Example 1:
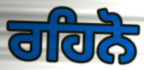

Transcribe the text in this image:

ਰਹਿਨੋ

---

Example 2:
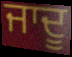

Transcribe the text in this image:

ਜਾਦੂ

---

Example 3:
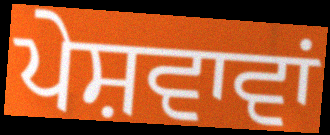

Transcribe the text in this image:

ਪੇਸ਼ਵਾਵਾਂ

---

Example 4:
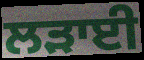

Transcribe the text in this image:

ਲੜਾਈ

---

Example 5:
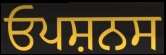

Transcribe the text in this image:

ਓਪਸ਼ਨਸ